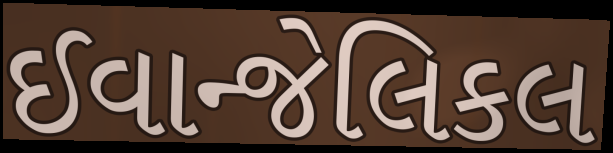
ઈવાન્જેલિકલ